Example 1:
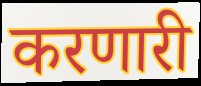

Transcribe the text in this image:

करणारी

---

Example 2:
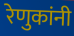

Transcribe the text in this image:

रेणुकांनी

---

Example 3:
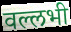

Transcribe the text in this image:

वल्लभी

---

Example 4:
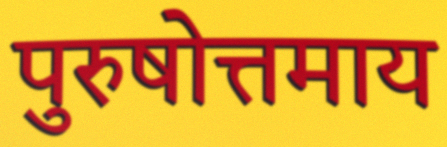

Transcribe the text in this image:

पुरुषोत्तमाय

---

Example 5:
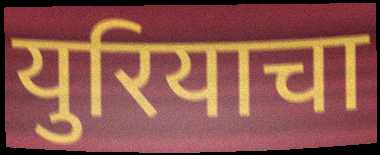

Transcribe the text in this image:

युरियाचा